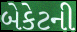
બેકેટની